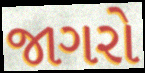
જાગરો